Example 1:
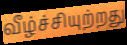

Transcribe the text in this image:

வீழ்ச்சியுற்றது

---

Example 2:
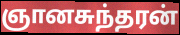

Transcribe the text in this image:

ஞானசுந்தரன்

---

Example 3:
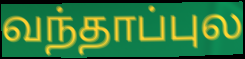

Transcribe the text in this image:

வந்தாப்புல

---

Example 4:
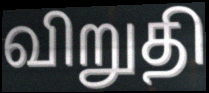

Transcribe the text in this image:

விறுதி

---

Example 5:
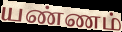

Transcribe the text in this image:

யண்ணம்